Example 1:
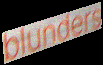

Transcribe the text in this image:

blunders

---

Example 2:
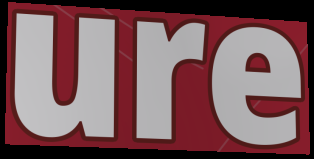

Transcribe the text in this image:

ure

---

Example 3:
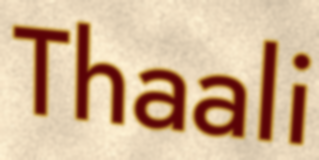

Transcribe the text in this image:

Thaali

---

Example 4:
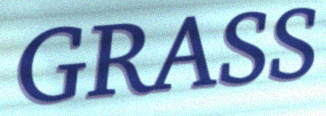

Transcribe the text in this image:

GRASS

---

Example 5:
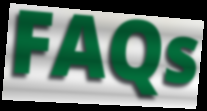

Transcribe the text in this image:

FAQs